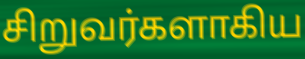
சிறுவர்களாகிய